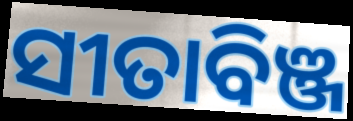
ସୀତାବିଞ୍ଜ